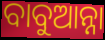
ବାବୁଆନ୍ନା